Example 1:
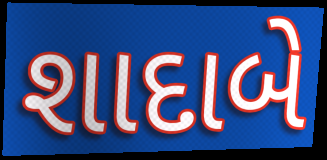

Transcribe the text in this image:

શાદાબે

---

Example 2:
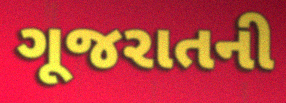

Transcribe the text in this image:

ગૂજરાતની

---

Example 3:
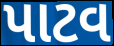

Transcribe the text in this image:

પાટવ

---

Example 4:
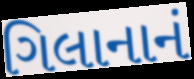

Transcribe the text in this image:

ગિલાનાનં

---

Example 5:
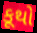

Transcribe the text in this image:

કૂથો